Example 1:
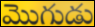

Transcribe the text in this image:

మొగుడు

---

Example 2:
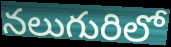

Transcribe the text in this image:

నలుగురిలో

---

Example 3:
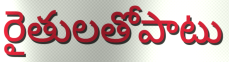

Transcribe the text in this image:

రైతులతోపాటు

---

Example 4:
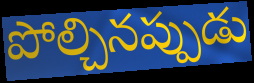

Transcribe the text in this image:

పోల్చినప్పుడు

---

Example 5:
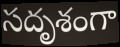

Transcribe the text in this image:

సదృశంగా